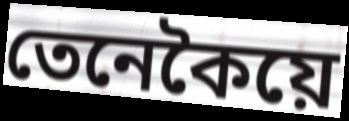
তেনেকৈয়ে